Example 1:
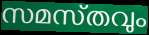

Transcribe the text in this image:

സമസ്‌തവും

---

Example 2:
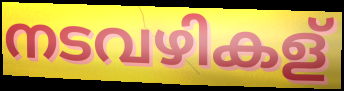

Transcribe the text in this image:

നടവഴികള്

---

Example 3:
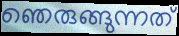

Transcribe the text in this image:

ഞെരുങ്ങുന്നത്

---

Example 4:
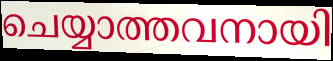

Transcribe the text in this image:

ചെയ്യാത്തവനായി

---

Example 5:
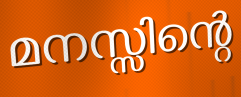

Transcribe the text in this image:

മനസ്സിന്റെ